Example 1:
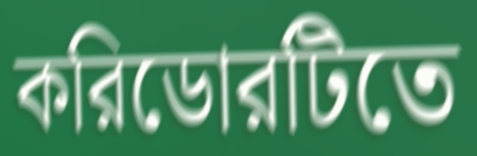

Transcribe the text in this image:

করিডোরটিতে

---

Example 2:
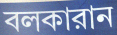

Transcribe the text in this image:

বলকারান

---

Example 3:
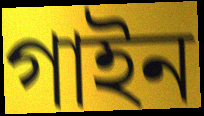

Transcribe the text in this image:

গাইন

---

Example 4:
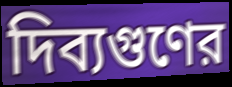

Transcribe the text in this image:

দিব্যগুণের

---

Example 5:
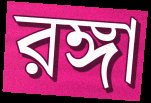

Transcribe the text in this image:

রঙ্গা